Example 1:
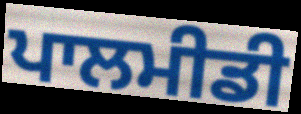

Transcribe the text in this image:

ਪਾਲਮੀਡੀ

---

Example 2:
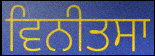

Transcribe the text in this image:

ਵਿਨੀਤਸਾ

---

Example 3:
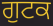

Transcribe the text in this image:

ਗੁਟਕ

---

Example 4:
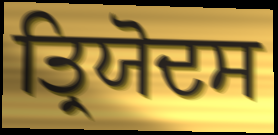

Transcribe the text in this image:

ਤ੍ਰਿਯੋਦਸ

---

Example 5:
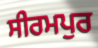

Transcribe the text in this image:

ਸੀਰਮਪੁਰ